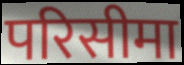
परिसीमा